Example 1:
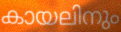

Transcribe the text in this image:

കായലിനും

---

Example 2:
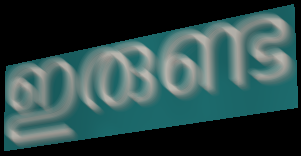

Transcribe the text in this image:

ഇരുണ്ട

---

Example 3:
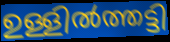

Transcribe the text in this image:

ഉള്ളിൽത്തട്ടി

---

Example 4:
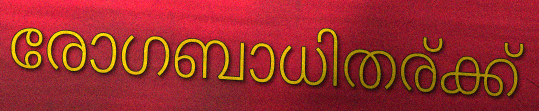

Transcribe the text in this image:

രോഗബാധിതര്ക്ക്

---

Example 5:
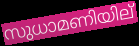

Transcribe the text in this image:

സുധാമണിയില്